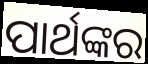
ପାର୍ଥଙ୍କର